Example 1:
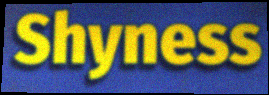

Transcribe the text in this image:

Shyness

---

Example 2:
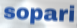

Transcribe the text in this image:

sopari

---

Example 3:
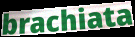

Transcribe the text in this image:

brachiata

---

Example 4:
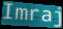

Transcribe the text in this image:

Imraj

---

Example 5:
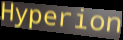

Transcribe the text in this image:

Hyperion